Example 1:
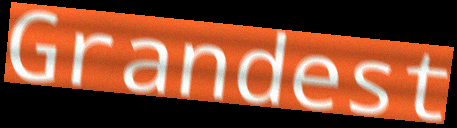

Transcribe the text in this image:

Grandest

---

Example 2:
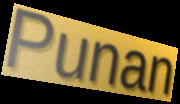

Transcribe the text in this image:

Punan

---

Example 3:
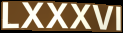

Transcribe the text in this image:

LXXXVI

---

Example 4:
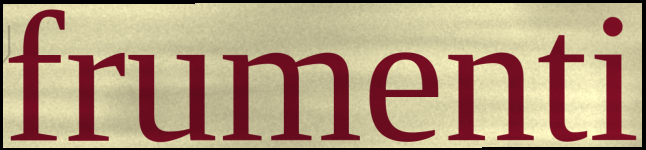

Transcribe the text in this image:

frumenti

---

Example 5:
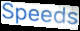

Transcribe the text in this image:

Speeds